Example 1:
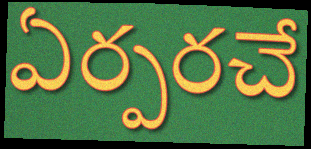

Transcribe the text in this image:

ఏర్పరచే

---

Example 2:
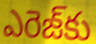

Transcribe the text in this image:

ఎరెజ్‌కు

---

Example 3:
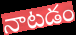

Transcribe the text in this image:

నాటడం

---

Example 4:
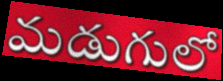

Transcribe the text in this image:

మడుగులో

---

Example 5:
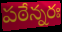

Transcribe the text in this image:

పఠేన్నరః